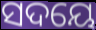
ସଦୟେ